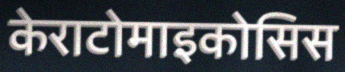
केराटोमाइकोसिस